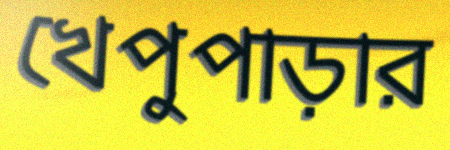
খেপুপাড়ার